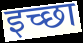
इच्‍छा